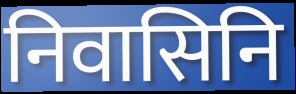
निवासिनि